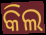
କିଲ